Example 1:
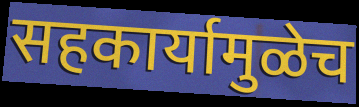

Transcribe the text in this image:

सहकार्यामुळेच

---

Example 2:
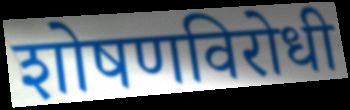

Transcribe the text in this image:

शोषणविरोधी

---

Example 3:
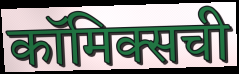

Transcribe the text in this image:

कॉमिक्सची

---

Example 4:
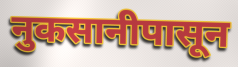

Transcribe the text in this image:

नुकसानीपासून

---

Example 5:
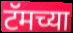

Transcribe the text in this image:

टॅमच्या